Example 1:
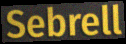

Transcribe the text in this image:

Sebrell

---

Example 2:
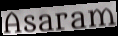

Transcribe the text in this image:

Asaram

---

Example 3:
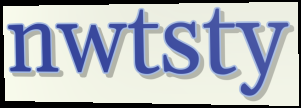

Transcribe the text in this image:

nwtsty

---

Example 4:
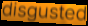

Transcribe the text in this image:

disgusted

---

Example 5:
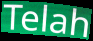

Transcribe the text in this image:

Telah